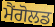
ਮੈਂਗੋਲਡ